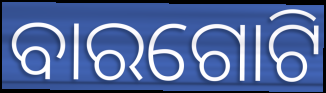
ବାରଗୋଟି